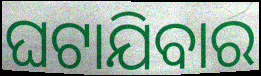
ଘଟାଯିବାର